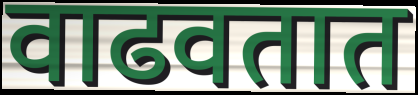
वाढवतात